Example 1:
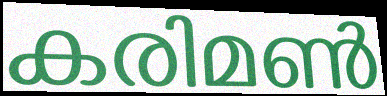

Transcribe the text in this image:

കരിമൺ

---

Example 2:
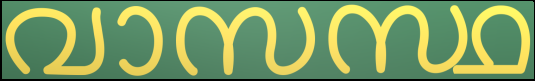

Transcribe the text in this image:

വാസസ്ഥ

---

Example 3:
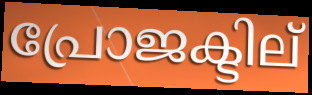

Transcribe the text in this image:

പ്രോജക്ടില്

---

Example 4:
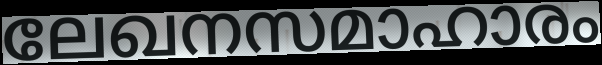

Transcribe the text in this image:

ലേഖനസമാഹാരം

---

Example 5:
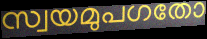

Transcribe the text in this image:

സ്വയമുപഗതോ